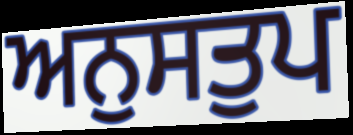
ਅਨੁਸਤੁਪ